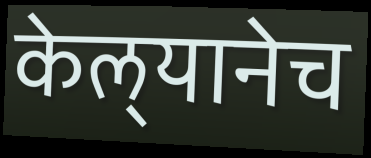
केल्यानेच